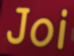
Joi